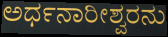
ಅರ್ಧನಾರೀಶ್ವರನು